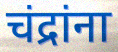
चंद्रांना